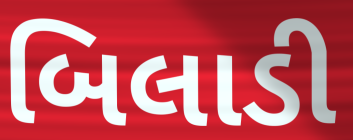
બિલાડી